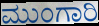
ಮುಂಗಾರಿ